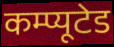
कम्प्यूटेड